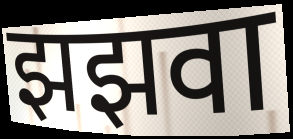
झझवा